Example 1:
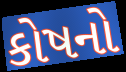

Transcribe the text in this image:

કોષનો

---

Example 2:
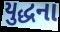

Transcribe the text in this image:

યુદ્ધના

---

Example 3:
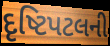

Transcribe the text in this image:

દૃષ્ટિપટલની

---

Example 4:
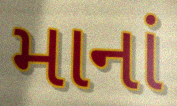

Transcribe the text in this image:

માનાં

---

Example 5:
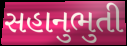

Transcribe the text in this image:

સહાનુભુતી